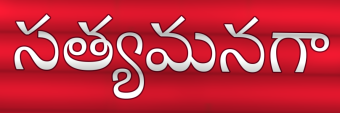
సత్యమనగా